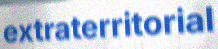
extraterritorial